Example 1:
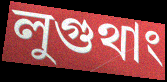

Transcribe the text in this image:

লুগুথাং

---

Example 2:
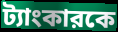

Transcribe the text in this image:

ট্যাংকারকে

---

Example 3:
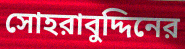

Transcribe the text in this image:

সোহরাবুদ্দিনের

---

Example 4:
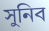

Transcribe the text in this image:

সুনিব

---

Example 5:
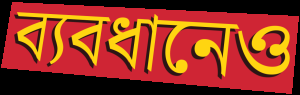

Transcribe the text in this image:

ব্যবধানেও